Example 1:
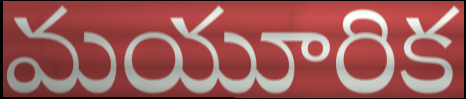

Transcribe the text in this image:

మయూరిక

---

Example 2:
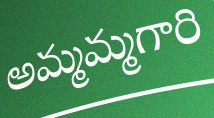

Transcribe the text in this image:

అమ్మమ్మగారి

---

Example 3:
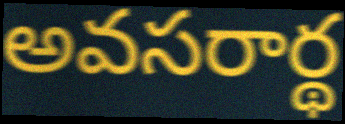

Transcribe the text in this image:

అవసరార్థ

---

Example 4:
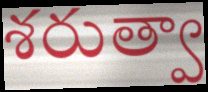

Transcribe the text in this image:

శరుత్వా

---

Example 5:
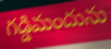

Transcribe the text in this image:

గడ్డిమందును